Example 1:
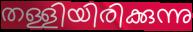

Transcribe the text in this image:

തള്ളിയിരിക്കുന്നു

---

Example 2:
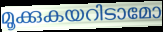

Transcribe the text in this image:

മൂക്കുകയറിടാമോ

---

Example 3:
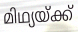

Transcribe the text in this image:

മിഥ്യയ്ക്ക്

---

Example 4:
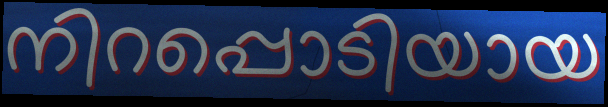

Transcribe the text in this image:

നിറപ്പൊടിയായ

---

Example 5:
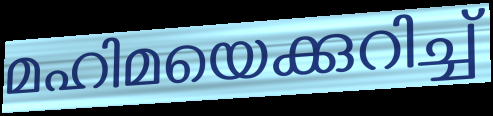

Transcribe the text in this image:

മഹിമയെക്കുറിച്ച്